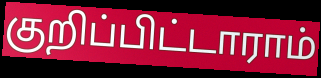
குறிப்பிட்டாராம்